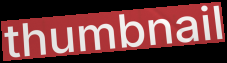
thumbnail